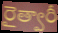
రైత్వారీ